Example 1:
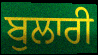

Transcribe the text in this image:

ਬੁਲਾਰੀ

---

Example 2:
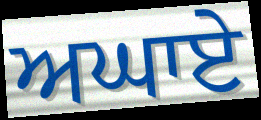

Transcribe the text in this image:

ਅਘਾਏ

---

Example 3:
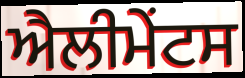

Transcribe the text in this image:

ਐਲੀਮੇੰਟਸ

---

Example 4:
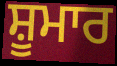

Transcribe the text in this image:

ਸ਼ੂਮਾਰ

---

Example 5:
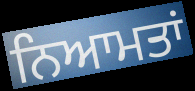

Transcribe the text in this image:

ਨਿਆਮਤਾਂ